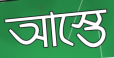
আস্তে